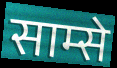
साम्से